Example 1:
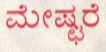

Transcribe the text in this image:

ಮೇಷ್ಟರೆ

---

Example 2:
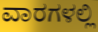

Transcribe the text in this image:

ವಾರಗಳಲ್ಲಿ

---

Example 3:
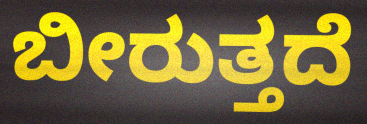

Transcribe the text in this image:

ಬೀರುತ್ತದೆ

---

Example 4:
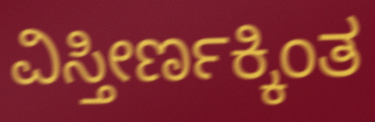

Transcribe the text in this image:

ವಿಸ್ತೀರ್ಣಕ್ಕಿಂತ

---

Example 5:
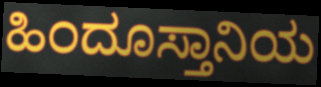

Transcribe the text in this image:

ಹಿಂದೂಸ್ತಾನಿಯ